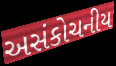
અસંકોચનીય